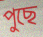
পুছে